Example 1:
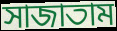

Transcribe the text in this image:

সাজাতাম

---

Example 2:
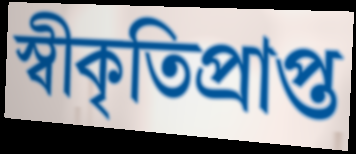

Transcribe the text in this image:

স্বীকৃতিপ্রাপ্ত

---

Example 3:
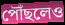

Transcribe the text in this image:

পৌঁছলেও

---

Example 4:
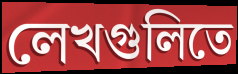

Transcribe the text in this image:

লেখগুলিতে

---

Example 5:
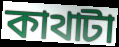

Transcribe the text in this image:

কাথাটা